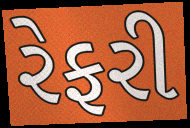
રેફરી